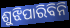
ଶୁଝିପାରିବିନି